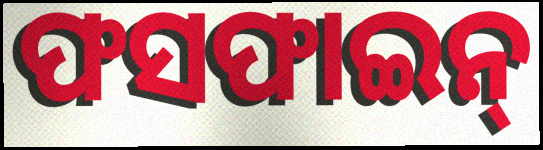
ଫସଫାଇନ୍